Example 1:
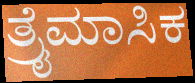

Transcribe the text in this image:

ತ್ರೈಮಾಸಿಕ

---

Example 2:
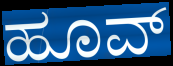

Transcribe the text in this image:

ಹೂವ್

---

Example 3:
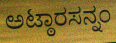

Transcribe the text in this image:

ಅಟ್ಠಾರಸನ್ನಂ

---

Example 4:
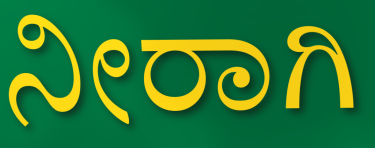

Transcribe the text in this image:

ನೀರಾಗಿ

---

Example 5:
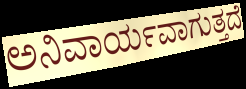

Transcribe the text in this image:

ಅನಿವಾರ್ಯವಾಗುತ್ತದೆ